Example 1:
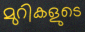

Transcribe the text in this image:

മുറികളുടെ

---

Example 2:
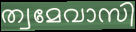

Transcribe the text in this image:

ത്വമേവാസി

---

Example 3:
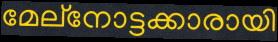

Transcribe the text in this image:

മേല്നോട്ടക്കാരായി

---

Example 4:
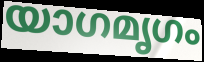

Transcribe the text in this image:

യാഗമൃഗം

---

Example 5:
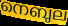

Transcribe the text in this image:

നെബുല